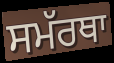
ਸਮੱਰਥਾ